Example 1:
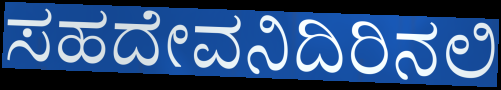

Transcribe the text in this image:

ಸಹದೇವನಿದಿರಿನಲಿ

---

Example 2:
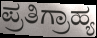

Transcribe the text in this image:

ಪ್ರತಿಗ್ರಾಹ್ಯ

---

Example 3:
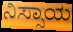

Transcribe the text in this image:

ನಿಸ್ಸಾಯ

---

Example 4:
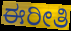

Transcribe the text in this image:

ಈರೀತಿ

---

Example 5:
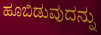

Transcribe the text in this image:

ಹೂಬಿಡುವುದನ್ನು